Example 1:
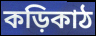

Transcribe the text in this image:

কড়িকাঠ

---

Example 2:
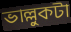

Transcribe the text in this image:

ভাল্লুকটা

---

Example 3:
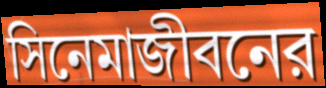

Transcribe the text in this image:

সিনেমাজীবনের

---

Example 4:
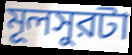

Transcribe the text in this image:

মূলসুরটা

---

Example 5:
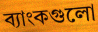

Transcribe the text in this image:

ব্যাংকগুলো